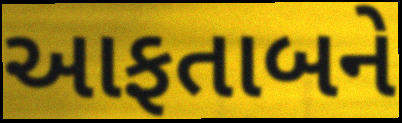
આફતાબને